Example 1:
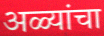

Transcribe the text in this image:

अळ्यांचा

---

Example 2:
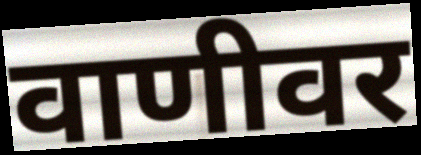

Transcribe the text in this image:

वाणीवर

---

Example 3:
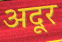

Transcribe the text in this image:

अदूर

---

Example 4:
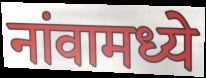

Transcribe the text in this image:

नांवामध्ये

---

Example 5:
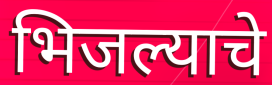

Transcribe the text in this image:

भिजल्याचे